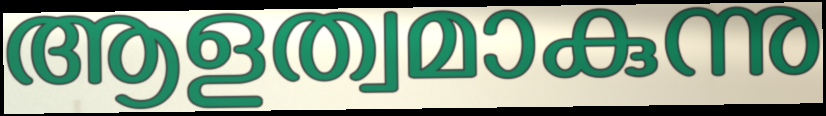
ആളത്വമാകുന്നു